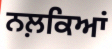
ਨਲ਼ਕਿਆਂ